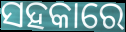
ସହକାରେ